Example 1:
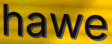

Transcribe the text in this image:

hawe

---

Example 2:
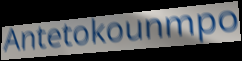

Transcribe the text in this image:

Antetokounmpo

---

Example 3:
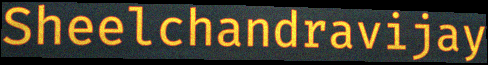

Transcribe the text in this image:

Sheelchandravijay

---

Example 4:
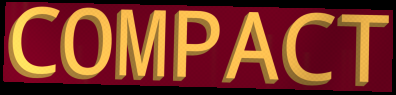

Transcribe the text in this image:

COMPACT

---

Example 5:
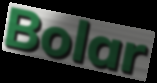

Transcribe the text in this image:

Bolar